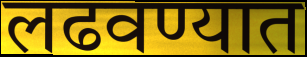
लढवण्यात